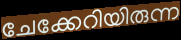
ചേക്കേറിയിരുന്ന